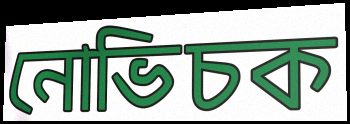
নোভিচক